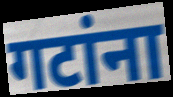
गटांना